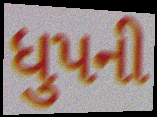
ધુપની